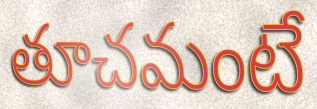
తూచమంటే